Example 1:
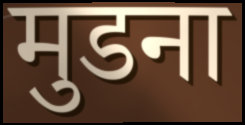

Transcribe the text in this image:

मुडना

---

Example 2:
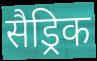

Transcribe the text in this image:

सैड्रिक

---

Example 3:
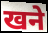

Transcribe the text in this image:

खने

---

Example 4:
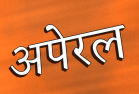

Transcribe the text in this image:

अपेरल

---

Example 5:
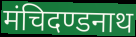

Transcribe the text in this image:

मंचिदण्डनाथ